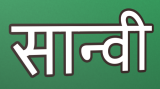
सान्वी